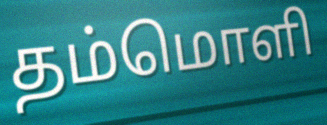
தம்மொளி